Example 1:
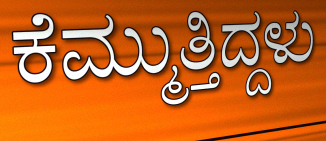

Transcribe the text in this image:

ಕೆಮ್ಮುತ್ತಿದ್ದಳು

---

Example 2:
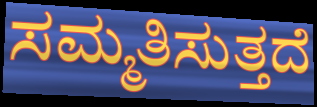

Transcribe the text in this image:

ಸಮ್ಮತಿಸುತ್ತದೆ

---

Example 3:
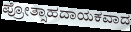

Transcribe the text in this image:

ಪ್ರೋತ್ಸಾಹದಾಯಕವಾದ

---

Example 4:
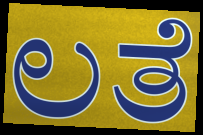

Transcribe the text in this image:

ಲತೆ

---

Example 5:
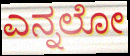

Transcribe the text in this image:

ಎನ್ನಲೋ